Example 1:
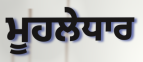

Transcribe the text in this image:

ਮੂਹਲੇਧਾਰ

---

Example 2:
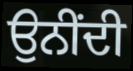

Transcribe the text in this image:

ਉਨੀਂਦੀ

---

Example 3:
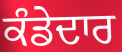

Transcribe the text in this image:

ਕੰਡੇਦਾਰ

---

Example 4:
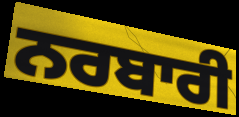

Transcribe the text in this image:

ਨਰਬਾਰੀ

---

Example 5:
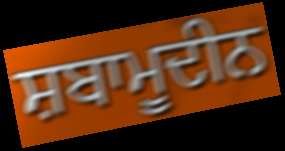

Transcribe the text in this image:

ਸ਼ਬਾਮੂਦੀਨ